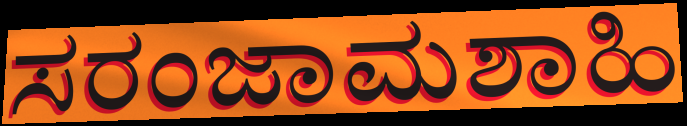
ಸರಂಜಾಮಶಾಹಿ